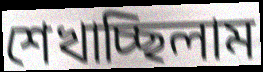
শেখাচ্ছিলাম